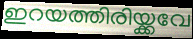
ഇറയത്തിരിയ്ക്കവേ